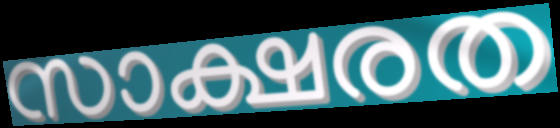
സാക്ഷരത